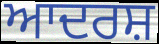
ਆਦਰਸ਼